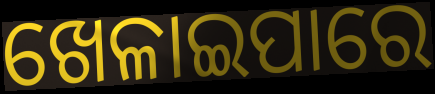
ଖେଳାଇପାରେ